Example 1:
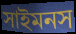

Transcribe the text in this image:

সাইমনস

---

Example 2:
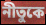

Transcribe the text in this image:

নীতুকে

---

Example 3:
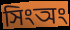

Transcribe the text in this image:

সিংঅং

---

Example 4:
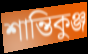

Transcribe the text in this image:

শান্তিকুঞ্জ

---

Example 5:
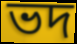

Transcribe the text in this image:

ভদ